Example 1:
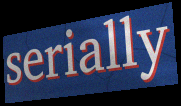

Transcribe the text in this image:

serially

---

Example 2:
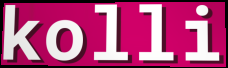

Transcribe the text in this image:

kolli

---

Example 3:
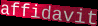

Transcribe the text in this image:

affidavit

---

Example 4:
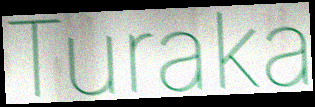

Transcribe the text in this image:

Turaka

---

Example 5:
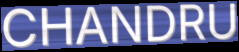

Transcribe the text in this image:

CHANDRU